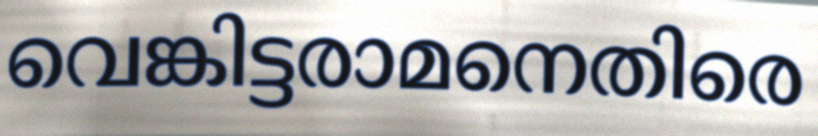
വെങ്കിട്ടരാമനെതിരെ